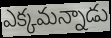
ఎక్కమన్నాడు